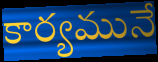
కార్యమునే